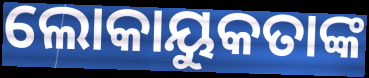
ଲୋକାୟୁକତାଙ୍କ